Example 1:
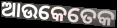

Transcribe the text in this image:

ଆଉକେତେକ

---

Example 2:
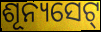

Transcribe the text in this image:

ଶୂନ୍ୟସେଟ୍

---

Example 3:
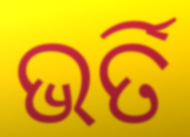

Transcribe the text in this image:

ଭର୍ତି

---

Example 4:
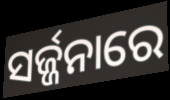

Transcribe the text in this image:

ସର୍ଜ୍ଜନାରେ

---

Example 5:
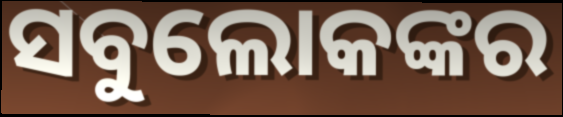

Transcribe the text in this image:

ସବୁଲୋକଙ୍କର